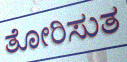
ತೋರಿಸುತ